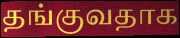
தங்குவதாக